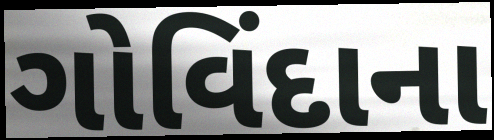
ગોવિંદાના